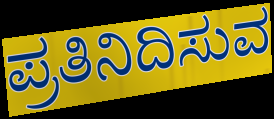
ಪ್ರತಿನಿದಿಸುವ